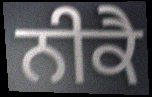
ਨੀਕੈ